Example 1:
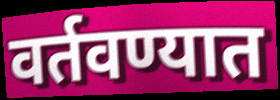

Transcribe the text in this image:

वर्तवण्यात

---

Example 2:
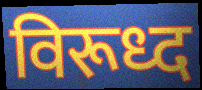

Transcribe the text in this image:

विरूध्द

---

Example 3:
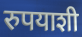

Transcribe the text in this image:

रुपयाशी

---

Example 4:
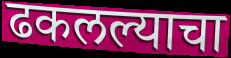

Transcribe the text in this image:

ढकलल्याचा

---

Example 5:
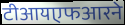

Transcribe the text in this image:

टीआयएफआरने